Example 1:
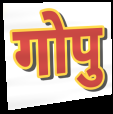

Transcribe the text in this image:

गोपु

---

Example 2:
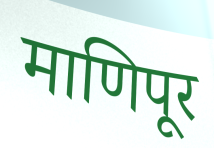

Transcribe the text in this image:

माणिपूर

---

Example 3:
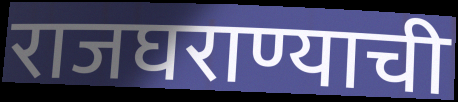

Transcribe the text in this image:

राजघराण्याची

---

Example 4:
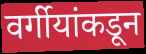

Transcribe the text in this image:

वर्गीयांकडून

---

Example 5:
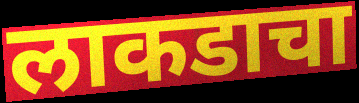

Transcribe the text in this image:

लाकडाचा